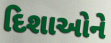
દિશાઓને